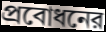
প্রবোধনের